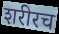
शरीरच